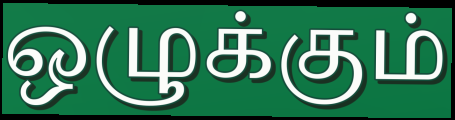
ஒழுக்கும்